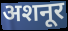
अशनूर